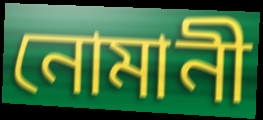
নোমানী